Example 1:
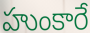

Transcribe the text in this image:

హుంకారే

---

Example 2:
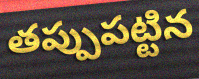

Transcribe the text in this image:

తప్పుపట్టిన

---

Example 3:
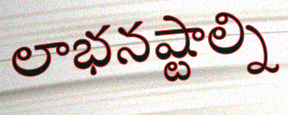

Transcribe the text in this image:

లాభనష్టాల్ని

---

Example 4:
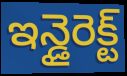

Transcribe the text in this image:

ఇన్డైరెక్ట్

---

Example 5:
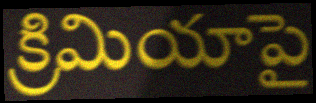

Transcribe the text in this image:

క్రిమియాపై